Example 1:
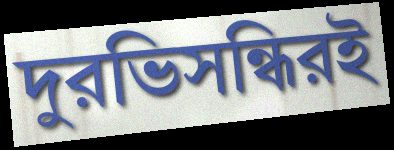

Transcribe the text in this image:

দুরভিসন্ধিরই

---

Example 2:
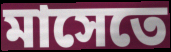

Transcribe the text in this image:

মাসেতে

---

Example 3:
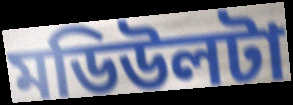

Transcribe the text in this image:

মডিউলটা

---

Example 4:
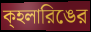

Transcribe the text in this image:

ক্হলারিঙের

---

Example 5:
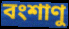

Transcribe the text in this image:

বংশাণু